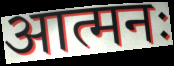
आत्मनः